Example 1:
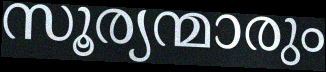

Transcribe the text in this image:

സൂര്യന്മാരും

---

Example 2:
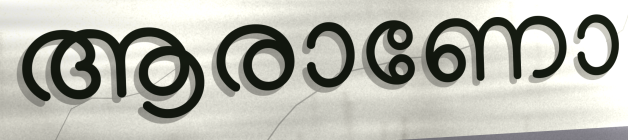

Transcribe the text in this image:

ആരാണോ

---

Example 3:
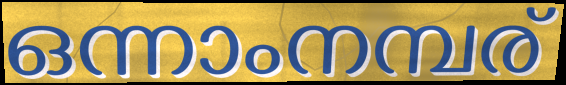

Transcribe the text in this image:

ഒന്നാംനമ്പര്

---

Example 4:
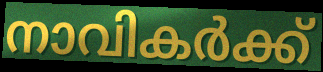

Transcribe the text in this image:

നാവികർക്ക്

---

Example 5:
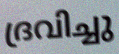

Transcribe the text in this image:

ദ്രവിച്ചു